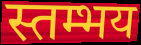
स्तम्भय